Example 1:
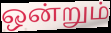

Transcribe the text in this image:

ஒன்றும்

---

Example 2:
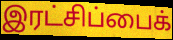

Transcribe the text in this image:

இரட்சிப்பைக்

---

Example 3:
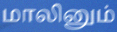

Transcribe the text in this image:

மாலினும்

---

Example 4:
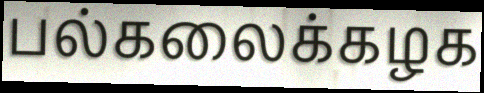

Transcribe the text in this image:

பல்கலைக்கழக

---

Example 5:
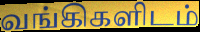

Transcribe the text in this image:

வங்கிகளிடம்